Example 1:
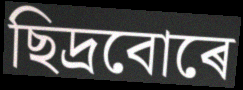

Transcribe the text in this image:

ছিদ্ৰবোৰে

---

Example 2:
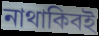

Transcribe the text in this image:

নাথাকিবই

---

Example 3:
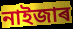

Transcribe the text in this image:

নাইজাৰ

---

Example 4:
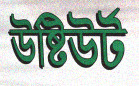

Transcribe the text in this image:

উষ্টিউৰ্ট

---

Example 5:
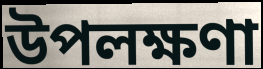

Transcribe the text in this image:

উপলক্ষণা